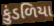
કુંડળિયા